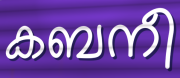
കബനീ